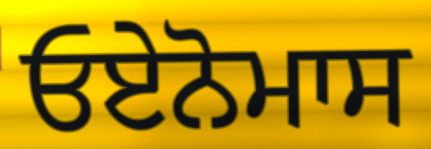
ਓਏਨੋਮਾਸ